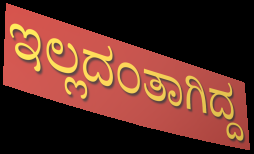
ಇಲ್ಲದಂತಾಗಿದ್ದ